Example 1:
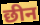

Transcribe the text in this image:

छीन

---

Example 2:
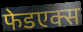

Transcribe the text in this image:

फेडएक्स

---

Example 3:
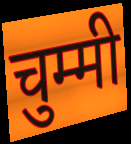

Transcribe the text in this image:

चुम्मी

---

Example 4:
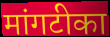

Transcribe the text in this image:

मांगटीका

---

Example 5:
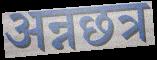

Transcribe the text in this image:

अन्नछत्र